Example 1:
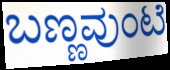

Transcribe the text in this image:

ಬಣ್ಣವುಂಟೆ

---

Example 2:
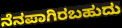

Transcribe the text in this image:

ನೆನಪಾಗಿರಬಹುದು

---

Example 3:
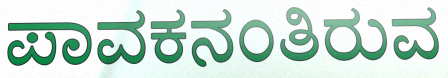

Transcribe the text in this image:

ಪಾವಕನಂತಿರುವ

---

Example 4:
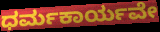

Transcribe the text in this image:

ಧರ್ಮಕಾರ್ಯವೇ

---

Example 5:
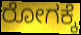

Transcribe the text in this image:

ರೋಗಕ್ಕೆ